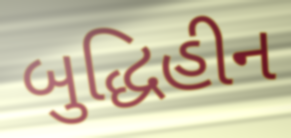
બુદ્ધિહીન